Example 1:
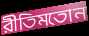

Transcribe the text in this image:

রীতিমতোন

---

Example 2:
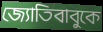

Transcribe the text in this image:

জ্যোতিবাবুকে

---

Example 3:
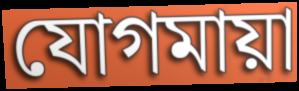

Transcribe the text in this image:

যোগমায়া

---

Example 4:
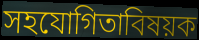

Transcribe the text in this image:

সহযোগিতাবিষয়ক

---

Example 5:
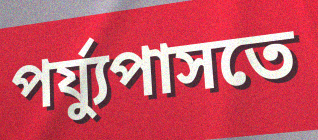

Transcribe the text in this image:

পর্য্যুপাসতে